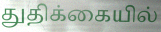
துதிக்கையில்